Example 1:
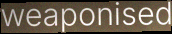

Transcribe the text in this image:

weaponised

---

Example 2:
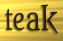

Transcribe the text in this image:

teak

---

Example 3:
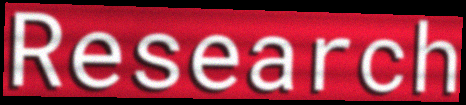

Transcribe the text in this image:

Research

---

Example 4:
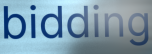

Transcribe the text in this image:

bidding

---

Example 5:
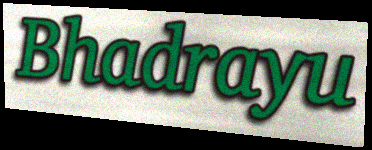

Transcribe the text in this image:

Bhadrayu